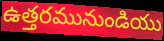
ఉత్తరమునుండియు